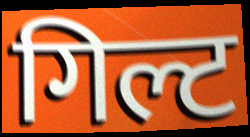
गिल्ट